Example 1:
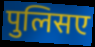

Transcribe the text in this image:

पुलिसए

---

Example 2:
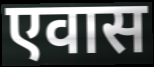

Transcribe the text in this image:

एवास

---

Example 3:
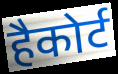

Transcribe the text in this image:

हैकोर्ट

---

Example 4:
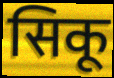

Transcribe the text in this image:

सिकू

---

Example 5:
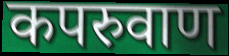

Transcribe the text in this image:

कपरुवाण